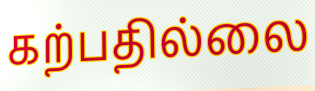
கற்பதில்லை